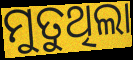
ମୁତୁଥିଲା